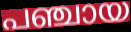
പഞ്ചായ